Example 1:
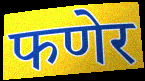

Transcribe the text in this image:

फणेर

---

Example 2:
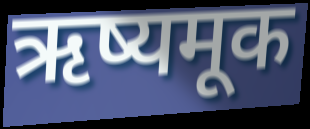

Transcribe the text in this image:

ऋष्यमूक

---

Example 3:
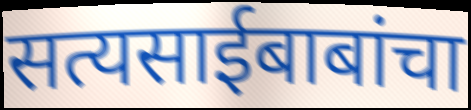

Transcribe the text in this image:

सत्यसाईबाबांचा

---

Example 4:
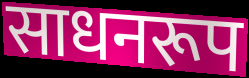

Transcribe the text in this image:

साधनरूप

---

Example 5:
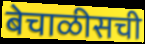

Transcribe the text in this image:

बेचाळीसची